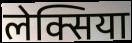
लेक्सिया